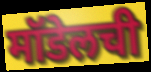
मॉडेलची